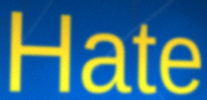
Hate